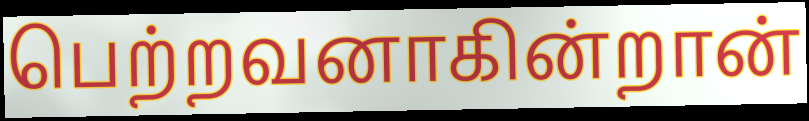
பெற்றவனாகின்றான்